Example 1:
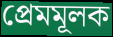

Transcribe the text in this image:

প্ৰেমমূলক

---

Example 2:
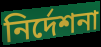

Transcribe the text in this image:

নিৰ্দেশনা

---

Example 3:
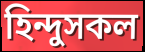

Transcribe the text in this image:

হিন্দুসকল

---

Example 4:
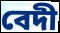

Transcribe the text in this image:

বেদী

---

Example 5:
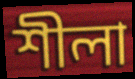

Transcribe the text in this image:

শীলা